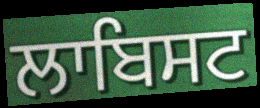
ਲਾਬਿਸਟ